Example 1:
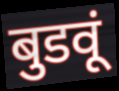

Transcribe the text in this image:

बुडवूं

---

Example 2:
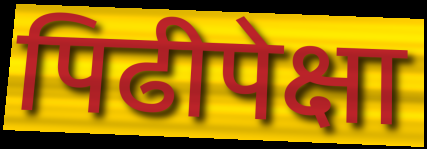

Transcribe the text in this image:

पिढीपेक्षा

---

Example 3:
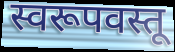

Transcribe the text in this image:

स्वरूपवस्तू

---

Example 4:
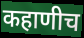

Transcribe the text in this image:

कहाणीच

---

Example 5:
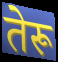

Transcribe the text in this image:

तेरू